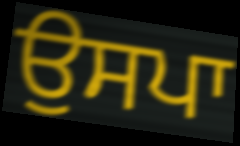
ਉਸਪਾ